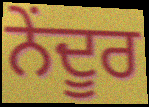
ਨੇਂਦੂਰ